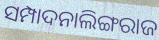
ସମ୍ପାଦନାଲିଙ୍ଗରାଜ